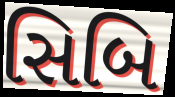
સિબિ